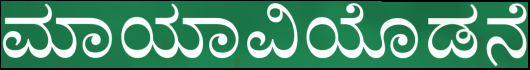
ಮಾಯಾವಿಯೊಡನೆ